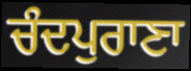
ਚੰਦਪੁਰਾਣਾ